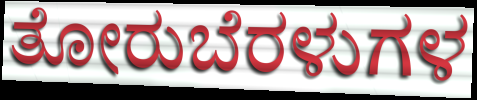
ತೋರುಬೆರಳುಗಳ